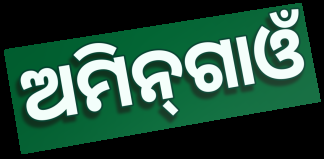
ଅମିନ୍‌ଗାଓଁ